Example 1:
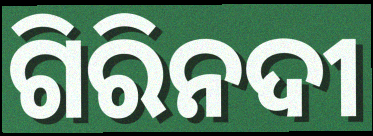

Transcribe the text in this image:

ଗିରିନଦୀ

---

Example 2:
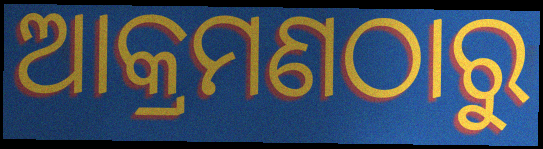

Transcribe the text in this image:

ଆକ୍ରମଣଠାରୁ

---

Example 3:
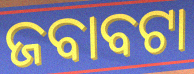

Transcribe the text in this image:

ଜବାବଟା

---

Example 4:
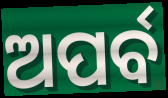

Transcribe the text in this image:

ଅପର୍ବ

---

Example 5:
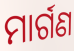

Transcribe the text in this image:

ମାର୍ଗଣ